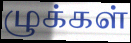
ழுக்கள்